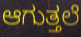
ಆಗುತ್ತಲೆ